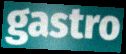
gastro